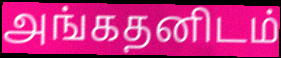
அங்கதனிடம்